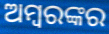
ଅମ୍ବରଙ୍କର